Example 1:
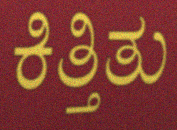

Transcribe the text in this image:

ಕಿತ್ತಿತು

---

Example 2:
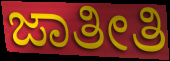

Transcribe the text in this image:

ಜಾತೀತಿ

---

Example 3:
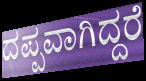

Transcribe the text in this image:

ದಪ್ಪವಾಗಿದ್ದರೆ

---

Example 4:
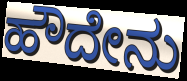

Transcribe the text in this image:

ಹೌದೇನು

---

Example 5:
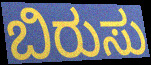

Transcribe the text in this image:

ಬಿರುಸು